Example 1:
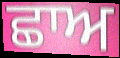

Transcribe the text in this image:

ਛਾਅ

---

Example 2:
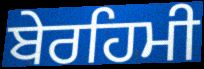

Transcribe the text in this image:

ਬੇਰਹਿਮੀ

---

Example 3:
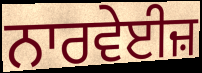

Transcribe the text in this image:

ਨਾਰਵੇਈਜ਼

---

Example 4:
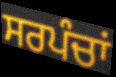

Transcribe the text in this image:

ਸਰਪੰਚਾਂ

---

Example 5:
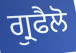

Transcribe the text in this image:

ਗ੍ਰੁਫੈਲੋ